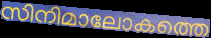
സിനിമാലോകത്തെ